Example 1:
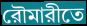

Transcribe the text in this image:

রৌমারীতে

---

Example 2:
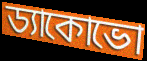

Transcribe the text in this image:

ড্যাকোভো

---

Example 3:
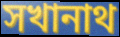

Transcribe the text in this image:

সখানাথ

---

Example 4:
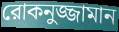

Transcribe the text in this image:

রোকনুজ্জামান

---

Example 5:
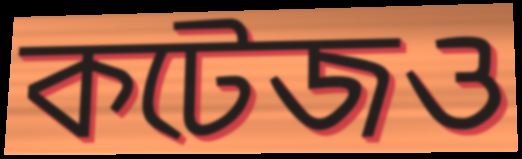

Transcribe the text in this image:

কটেজও